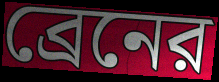
ব্রেনের